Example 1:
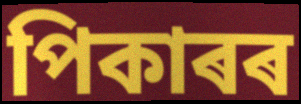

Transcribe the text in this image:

পিকাৰৰ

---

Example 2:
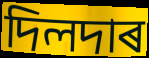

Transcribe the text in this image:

দিলদাৰ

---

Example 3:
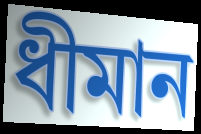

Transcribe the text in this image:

ধীমান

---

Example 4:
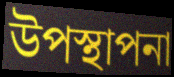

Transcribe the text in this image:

উপস্থাপনা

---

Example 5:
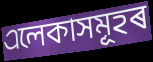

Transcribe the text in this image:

এলেকাসমূহৰ